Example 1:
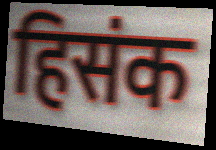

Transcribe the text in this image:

हिसंक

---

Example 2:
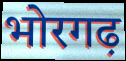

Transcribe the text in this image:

भोरगढ़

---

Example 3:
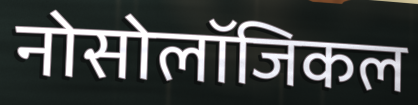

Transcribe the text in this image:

नोसोलॉजिकल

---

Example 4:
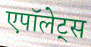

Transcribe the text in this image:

एपॉलेट्स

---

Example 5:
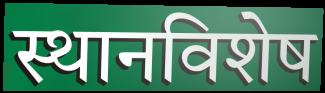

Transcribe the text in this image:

स्थानविशेष